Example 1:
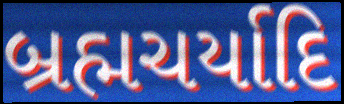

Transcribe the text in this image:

બ્રહ્મચર્યાદિ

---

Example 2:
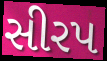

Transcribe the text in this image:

સીરપ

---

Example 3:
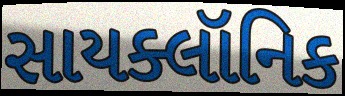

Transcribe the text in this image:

સાયક્લૉનિક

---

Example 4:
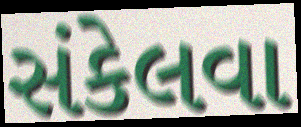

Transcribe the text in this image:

સંકેલવા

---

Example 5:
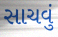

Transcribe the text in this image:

સાચવું